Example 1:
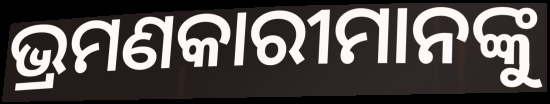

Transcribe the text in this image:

ଭ୍ରମଣକାରୀମାନଙ୍କୁ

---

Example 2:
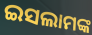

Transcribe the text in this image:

ଇସଲାମଙ୍କ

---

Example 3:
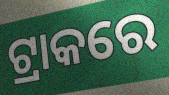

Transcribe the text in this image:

ଟ୍ରାକରେ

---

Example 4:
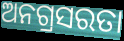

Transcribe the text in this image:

ଅନଗ୍ରସରତା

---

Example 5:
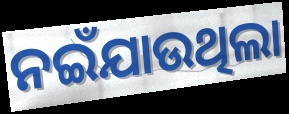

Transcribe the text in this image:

ନଇଁଯାଉଥିଲା